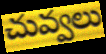
చువ్వలు